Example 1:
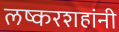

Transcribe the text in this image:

लष्करशहांनी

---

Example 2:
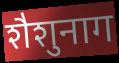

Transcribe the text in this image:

शैशुनाग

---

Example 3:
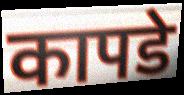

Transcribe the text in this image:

कापडे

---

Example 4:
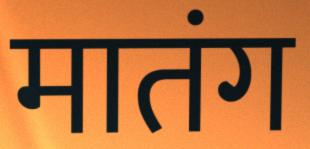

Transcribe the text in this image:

मातंग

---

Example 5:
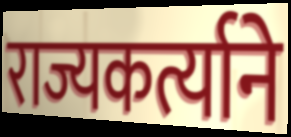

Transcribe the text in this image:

राज्यकर्त्याने